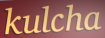
kulcha